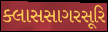
ક્લાસસાગરસૂરિ